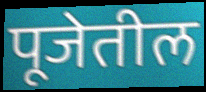
पूजेतील